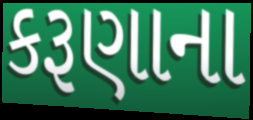
કરૂણાના